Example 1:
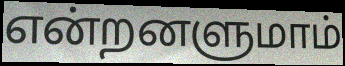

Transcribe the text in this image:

என்றனளுமாம்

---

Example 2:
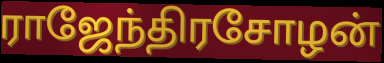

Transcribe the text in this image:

ராஜேந்திரசோழன்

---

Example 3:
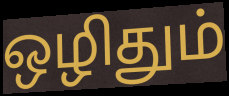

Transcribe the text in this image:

ஒழிதும்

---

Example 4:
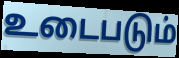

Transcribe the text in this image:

உடைபடும்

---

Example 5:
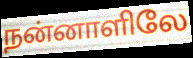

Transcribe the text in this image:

நன்னாளிலே